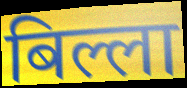
बिल्ला